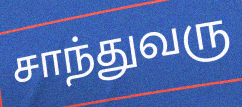
சாந்துவரு